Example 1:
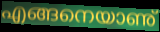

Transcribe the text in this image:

എങ്ങനെയാണു്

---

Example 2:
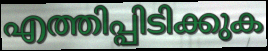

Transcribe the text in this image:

എത്തിപ്പിടിക്കുക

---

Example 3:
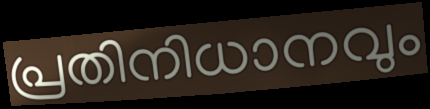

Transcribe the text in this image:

പ്രതിനിധാനവും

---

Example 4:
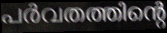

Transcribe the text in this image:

പർവതത്തിന്റെ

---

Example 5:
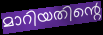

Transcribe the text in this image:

മാറിയതിന്റെ